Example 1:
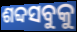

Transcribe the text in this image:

ଶବ୍ଦସବୁକୁ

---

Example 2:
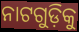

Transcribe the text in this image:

ନାଟଗୁଡ଼ିକୁ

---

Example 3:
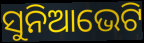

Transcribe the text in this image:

ସୁନିଆଭେଟି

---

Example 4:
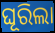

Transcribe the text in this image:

ଘୂରିଲା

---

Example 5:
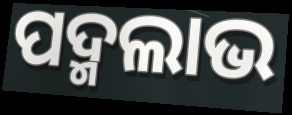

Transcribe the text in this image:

ପଦ୍ମଲାଭ